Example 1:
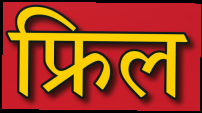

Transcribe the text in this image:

फ्रिल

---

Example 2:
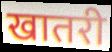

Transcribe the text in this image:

खातरी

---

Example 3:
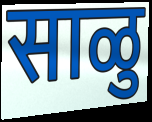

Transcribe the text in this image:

साळु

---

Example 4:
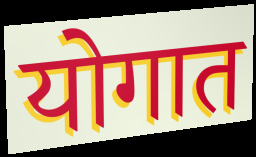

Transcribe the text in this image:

योगात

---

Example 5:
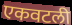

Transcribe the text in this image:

एकवटली